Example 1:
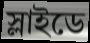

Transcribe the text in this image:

স্লাইডে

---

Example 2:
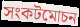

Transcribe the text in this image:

সংকটমোচন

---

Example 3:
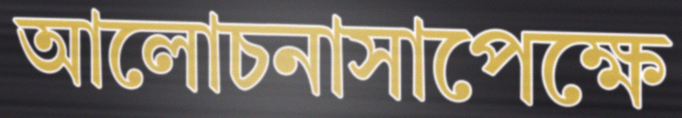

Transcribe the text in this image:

আলোচনাসাপেক্ষে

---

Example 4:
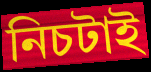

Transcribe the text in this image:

নিচটাই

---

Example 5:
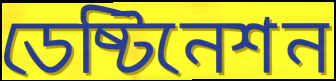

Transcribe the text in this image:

ডেষ্টিনেশন